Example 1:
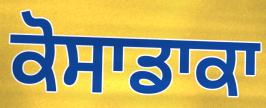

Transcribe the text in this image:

ਕੋਸਾਡਾਕਾ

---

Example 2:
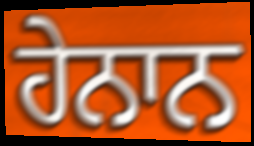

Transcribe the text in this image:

ਹੇਨਾਨ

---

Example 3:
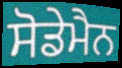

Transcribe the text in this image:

ਸੋਡੇਮੈਨ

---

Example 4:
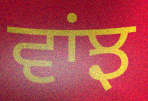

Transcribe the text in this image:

ਵਾਂਝ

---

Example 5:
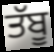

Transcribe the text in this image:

ਤੱਬੂ